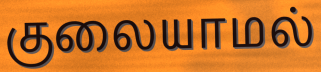
குலையாமல்